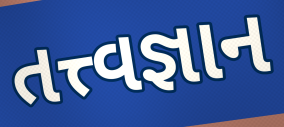
તત્ત્વજ્ઞાન